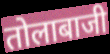
तोलाबाजी